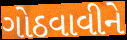
ગોઠવાવીને